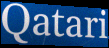
Qatari